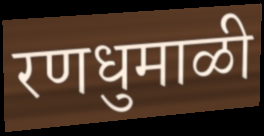
रणधुमाळी